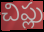
చిప్లు